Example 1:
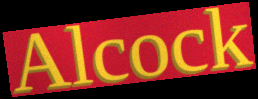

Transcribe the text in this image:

Alcock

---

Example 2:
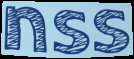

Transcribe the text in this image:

nss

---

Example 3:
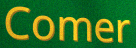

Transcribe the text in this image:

Comer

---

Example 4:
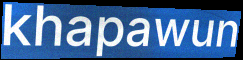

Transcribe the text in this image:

khapawun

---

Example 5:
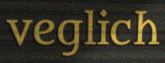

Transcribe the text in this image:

veglich